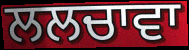
ਲਲਚਾਵਾ